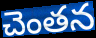
చెంతన